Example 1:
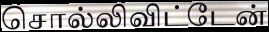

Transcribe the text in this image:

சொல்லிவிட்டேன்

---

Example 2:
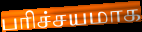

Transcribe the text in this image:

பரிச்சயமாக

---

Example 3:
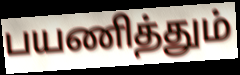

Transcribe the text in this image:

பயணித்தும்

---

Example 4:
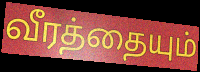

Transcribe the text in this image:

வீரத்தையும்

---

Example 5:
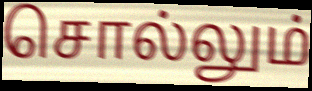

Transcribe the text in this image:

சொல்லும்